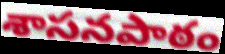
శాసనపాఠం